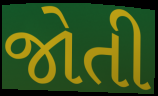
જોતી